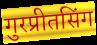
गुरप्रीतसिंग